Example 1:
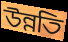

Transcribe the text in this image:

উন্নতি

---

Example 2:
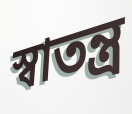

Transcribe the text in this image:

স্বাতন্ত্র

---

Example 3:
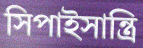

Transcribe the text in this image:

সিপাইসান্ত্রি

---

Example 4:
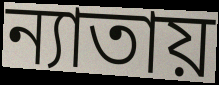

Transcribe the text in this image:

ন্যাতায়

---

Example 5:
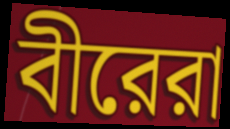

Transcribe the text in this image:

বীরেরা